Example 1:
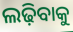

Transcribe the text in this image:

ଲଢ଼ିବାକୁ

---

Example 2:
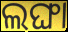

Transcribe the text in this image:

ଲଙ୍ଘା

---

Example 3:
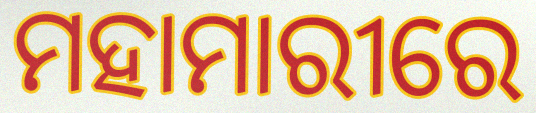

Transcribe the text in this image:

ମହାମାରୀରେ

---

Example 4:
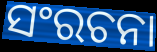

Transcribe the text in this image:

ସଂରଚନା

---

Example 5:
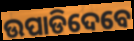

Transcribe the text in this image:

ଉପାଡିଦେବେ